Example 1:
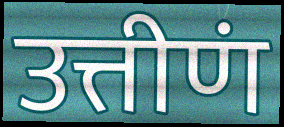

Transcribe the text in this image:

उत्तीणं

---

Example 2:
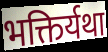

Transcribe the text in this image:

भक्तिर्यथा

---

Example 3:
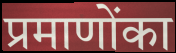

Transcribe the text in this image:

प्रमाणोंका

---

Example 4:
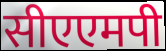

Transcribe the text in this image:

सीएएमपी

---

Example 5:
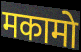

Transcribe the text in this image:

मकामो